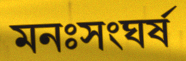
মনঃসংঘর্ষ